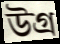
উগ্ৰ